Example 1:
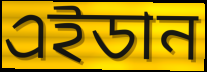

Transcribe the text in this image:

এইডান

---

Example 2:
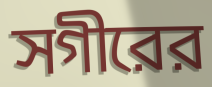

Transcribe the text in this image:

সগীরের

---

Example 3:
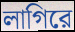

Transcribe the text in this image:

লাগিরে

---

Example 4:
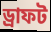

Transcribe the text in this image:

ড্রাফট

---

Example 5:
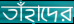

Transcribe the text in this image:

তাঁহাদের